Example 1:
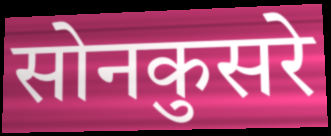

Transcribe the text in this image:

सोनकुसरे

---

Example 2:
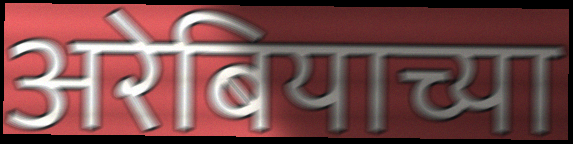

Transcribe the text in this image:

अरेबियाच्या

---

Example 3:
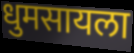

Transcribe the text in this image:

धुमसायला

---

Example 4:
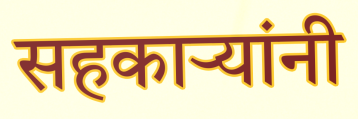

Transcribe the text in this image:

सहकाऱ्यांनी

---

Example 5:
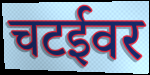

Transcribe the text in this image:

चटईवर